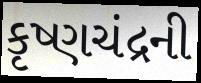
કૃષ્ણચંદ્રની